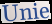
Unie